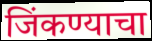
जिंकण्याचा